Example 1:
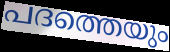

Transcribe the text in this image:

പദത്തെയും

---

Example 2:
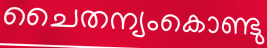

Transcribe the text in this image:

ചൈതന്യംകൊണ്ടു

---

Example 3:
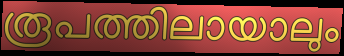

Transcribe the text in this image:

രൂപത്തിലായാലും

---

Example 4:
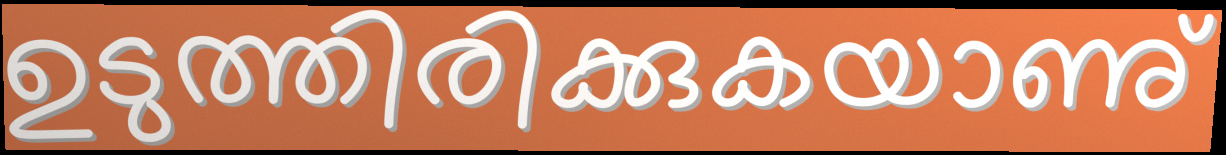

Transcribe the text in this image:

ഉടുത്തിരിക്കുകയാണു്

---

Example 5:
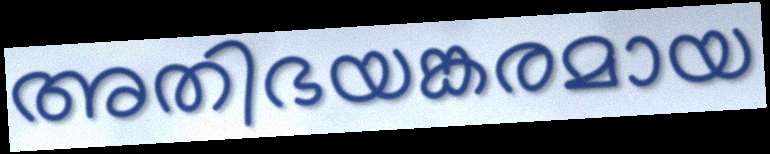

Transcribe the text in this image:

അതിഭയങ്കരമായ